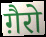
ग़ैरो